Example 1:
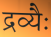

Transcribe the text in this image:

द्रव्यैः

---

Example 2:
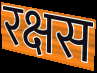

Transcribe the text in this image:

रक्षस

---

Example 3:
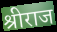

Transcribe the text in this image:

श्रीराज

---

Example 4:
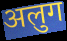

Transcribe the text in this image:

अलुग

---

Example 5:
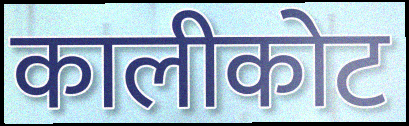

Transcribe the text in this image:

कालीकोट